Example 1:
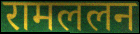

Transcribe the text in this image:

रामललन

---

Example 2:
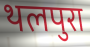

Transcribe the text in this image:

थलपुरा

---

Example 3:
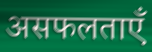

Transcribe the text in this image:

असफलताएँ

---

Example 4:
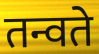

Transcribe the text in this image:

तन्वते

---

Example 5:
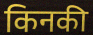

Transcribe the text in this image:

किनकी